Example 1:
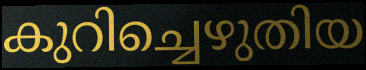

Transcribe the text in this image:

കുറിച്ചെഴുതിയ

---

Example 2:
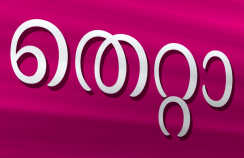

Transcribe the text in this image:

തെറ്റാ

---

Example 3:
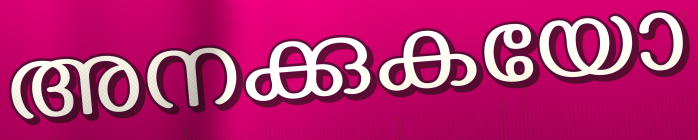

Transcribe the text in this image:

അനക്കുകയോ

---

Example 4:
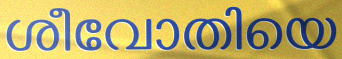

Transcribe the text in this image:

ശീവോതിയെ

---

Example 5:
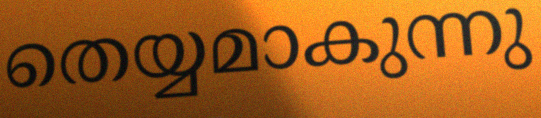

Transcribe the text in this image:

തെയ്യമാകുന്നു